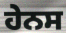
ਹੇਨਸ